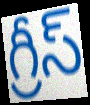
గ్రీస్